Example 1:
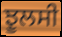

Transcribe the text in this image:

ਝੂਲਸੀ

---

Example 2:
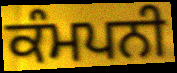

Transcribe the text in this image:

ਕੰਮਪਨੀ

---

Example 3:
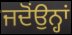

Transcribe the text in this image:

ਜਦੋਂਉਨ੍ਹਾਂ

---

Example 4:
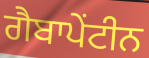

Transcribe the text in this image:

ਗੈਬਾਪੇਂਟੀਨ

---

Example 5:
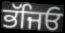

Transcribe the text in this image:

ਭੱਜਿਓ